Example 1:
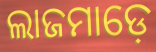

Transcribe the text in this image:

ଲାଜମାଡ଼େ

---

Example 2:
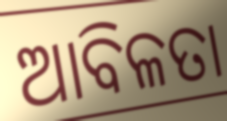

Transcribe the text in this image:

ଆବିଳତା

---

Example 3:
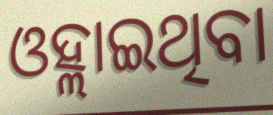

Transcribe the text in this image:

ଓହ୍ଲାଇଥିବା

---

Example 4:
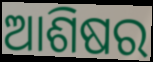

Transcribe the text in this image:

ଆଶିଷର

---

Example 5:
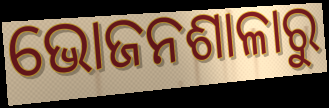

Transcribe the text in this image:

ଭୋଜନଶାଳାରୁ